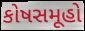
કોષસમૂહો